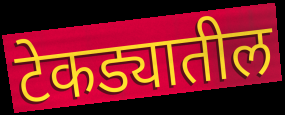
टेकड्यातील